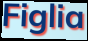
Figlia